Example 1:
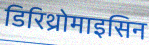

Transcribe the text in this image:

डिरिथ्रोमाइसिन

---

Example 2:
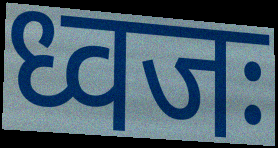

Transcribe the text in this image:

ध्वजः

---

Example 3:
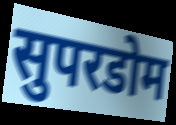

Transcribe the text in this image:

सुपरडोम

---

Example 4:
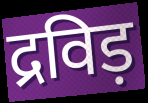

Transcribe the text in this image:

द्रविड़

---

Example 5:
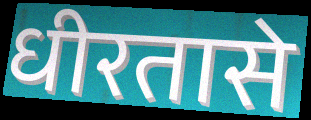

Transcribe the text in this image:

धीरतासे